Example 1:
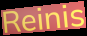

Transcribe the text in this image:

Reinis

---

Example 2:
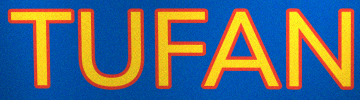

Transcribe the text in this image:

TUFAN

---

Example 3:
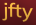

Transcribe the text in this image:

jfty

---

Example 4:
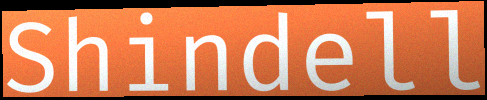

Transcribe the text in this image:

Shindell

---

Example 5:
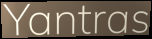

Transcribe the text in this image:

Yantras